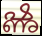
ഷ്ണു